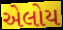
એલોય